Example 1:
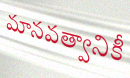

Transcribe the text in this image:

మానవత్వానికీ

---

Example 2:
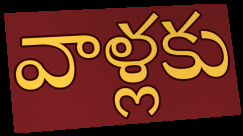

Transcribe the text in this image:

వాళ్లకు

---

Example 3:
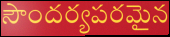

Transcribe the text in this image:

సౌందర్యపరమైన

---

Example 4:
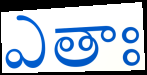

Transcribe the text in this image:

ఎతాః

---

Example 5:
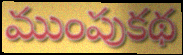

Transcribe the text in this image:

ముంపుకథ